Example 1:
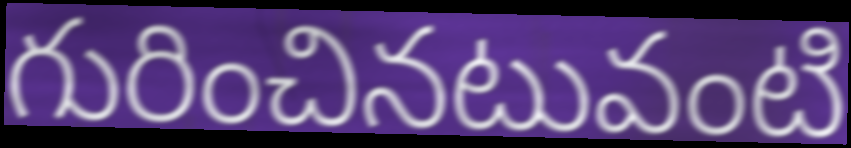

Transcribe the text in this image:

గురించినటువంటి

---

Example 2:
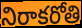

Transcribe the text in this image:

నిరాకరోతి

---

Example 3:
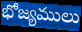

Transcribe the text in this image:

భోజ్యములు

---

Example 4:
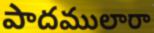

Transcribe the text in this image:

పాదములారా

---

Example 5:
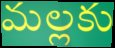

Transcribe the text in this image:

మల్లకు